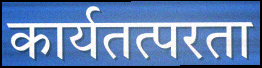
कार्यतत्परता